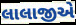
લાલાજીએ